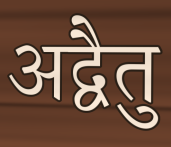
अद्वैतु